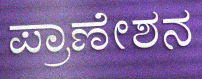
ಪ್ರಾಣೇಶನ